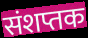
संशप्तक